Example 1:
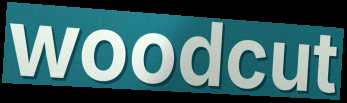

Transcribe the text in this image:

woodcut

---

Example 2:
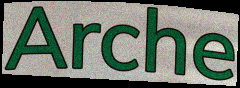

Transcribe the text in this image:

Arche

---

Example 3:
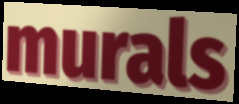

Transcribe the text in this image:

murals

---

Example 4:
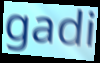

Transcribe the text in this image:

gadi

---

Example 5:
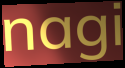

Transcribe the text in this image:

nagi